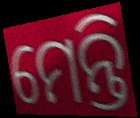
ମେନ୍ତି